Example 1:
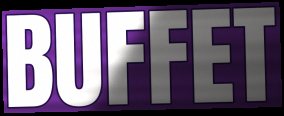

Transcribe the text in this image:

BUFFET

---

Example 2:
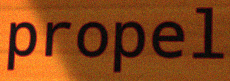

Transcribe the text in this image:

propel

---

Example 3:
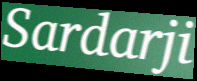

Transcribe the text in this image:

Sardarji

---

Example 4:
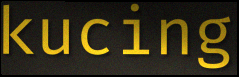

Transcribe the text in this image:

kucing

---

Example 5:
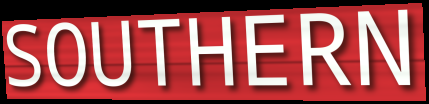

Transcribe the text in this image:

SOUTHERN